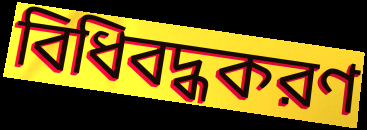
বিধিবদ্ধকরণ